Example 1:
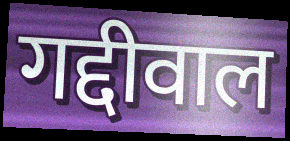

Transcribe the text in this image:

गद्दीवाल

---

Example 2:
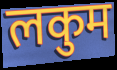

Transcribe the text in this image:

लकुम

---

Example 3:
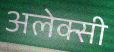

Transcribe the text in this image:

अलेक्सी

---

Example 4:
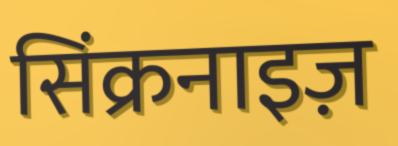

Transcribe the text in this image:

सिंक्रनाइज़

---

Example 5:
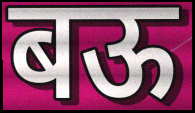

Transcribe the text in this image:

बऊ